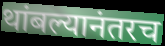
थांबल्यानंतरच